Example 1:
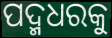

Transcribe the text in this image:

ପଦ୍ମଧରକୁ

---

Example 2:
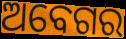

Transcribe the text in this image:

ଅବେଗର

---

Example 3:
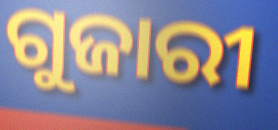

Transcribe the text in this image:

ଗୁଜାରୀ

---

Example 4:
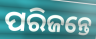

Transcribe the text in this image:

ପରିଜନ୍ତେ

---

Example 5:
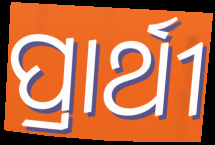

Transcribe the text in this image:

ପ୍ରାର୍ଥୀ